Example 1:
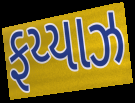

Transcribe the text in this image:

ફય્યાઝ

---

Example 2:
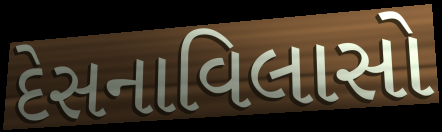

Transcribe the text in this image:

દેસનાવિલાસો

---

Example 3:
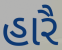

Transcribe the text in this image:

હારૈ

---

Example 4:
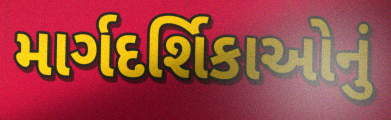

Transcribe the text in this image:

માર્ગદર્શિકાઓનું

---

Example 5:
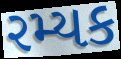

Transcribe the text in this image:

રમ્યક